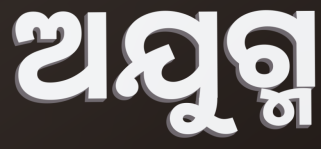
ଅଯୁଗ୍ମ